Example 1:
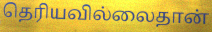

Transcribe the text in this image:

தெரியவில்லைதான்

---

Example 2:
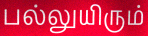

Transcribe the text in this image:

பல்லுயிரும்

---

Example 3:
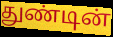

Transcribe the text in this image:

துண்டின்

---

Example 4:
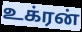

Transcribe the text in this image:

உக்ரன்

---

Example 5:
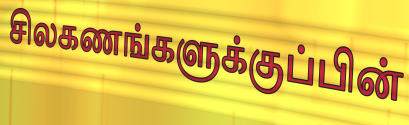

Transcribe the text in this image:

சிலகணங்களுக்குப்பின்